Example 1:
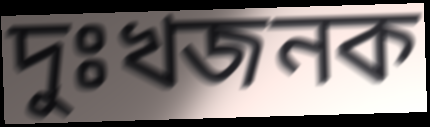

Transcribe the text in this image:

দুঃখজনক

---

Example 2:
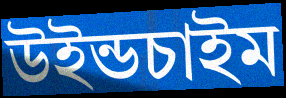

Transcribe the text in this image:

উইন্ডচাইম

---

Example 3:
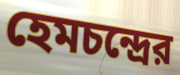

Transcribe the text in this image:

হেমচন্দ্রের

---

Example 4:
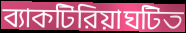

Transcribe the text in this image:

ব্যাকটিরিয়াঘটিত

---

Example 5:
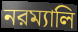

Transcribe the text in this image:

নরম্যালি